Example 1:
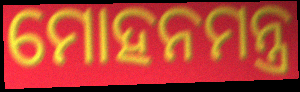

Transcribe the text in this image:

ମୋହନମନ୍ତ୍ର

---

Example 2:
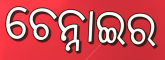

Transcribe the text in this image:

ଚେନ୍ନାଇର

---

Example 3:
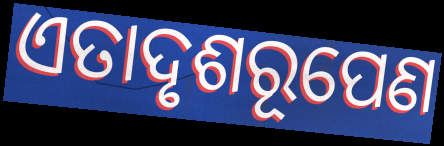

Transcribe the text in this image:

ଏତାଦୃଶରୂପେଣ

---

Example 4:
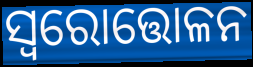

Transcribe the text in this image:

ସ୍ବରୋତ୍ତୋଳନ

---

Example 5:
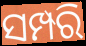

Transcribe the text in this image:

ସମ୍ପରି